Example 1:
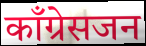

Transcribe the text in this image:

काँग्रेसजन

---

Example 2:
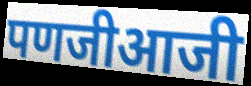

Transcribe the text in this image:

पणजीआजी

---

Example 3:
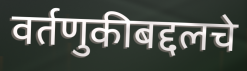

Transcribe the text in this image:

वर्तणुकीबद्दलचे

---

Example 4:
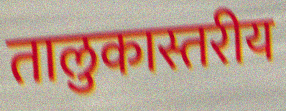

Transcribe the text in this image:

तालुकास्तरीय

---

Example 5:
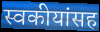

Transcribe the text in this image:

स्वकीयांसह